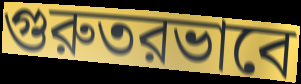
গুরুতরভাবে